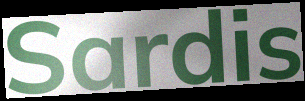
Sardis